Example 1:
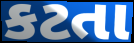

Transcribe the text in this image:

કટતા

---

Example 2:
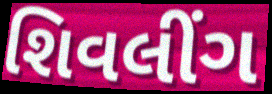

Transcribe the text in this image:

શિવલીંગ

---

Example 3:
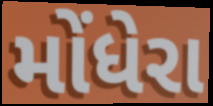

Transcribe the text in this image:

મોંધેરા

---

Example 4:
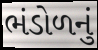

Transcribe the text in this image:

ભંડોળનું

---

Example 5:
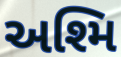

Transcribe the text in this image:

અશ્મિ